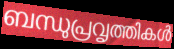
ബന്ധുപ്രവൃത്തികൾ